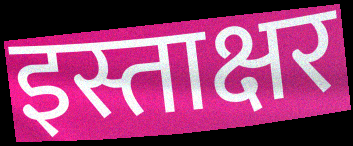
इस्ताक्षर